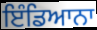
ਇੰਡਿਆਨਾ